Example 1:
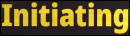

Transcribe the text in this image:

Initiating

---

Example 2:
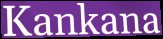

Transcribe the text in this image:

Kankana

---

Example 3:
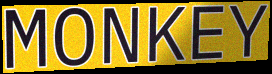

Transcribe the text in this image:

MONKEY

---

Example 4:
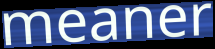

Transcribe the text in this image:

meaner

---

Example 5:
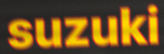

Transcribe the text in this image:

suzuki